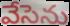
వేసెను